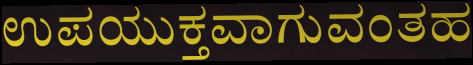
ಉಪಯುಕ್ತವಾಗುವಂತಹ